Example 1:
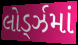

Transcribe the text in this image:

લોર્ડ્ઝમાં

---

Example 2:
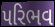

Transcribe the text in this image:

પરિભવ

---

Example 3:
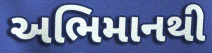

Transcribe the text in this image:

અભિમાનથી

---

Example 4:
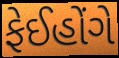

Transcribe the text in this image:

ફેઈહોંગે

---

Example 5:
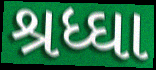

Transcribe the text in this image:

શ્રધ્ઘા